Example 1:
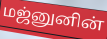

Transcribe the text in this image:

மஜ்னுனின்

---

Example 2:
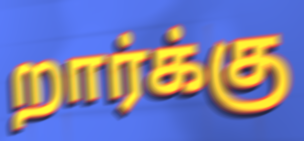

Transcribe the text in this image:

றார்க்கு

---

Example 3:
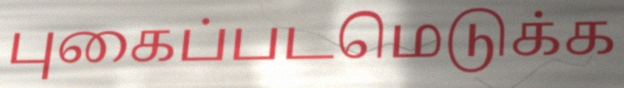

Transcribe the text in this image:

புகைப்படமெடுக்க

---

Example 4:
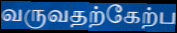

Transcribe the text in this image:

வருவதற்கேற்ப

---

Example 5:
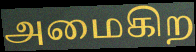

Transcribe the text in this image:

அமைகிற